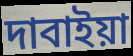
দাবাইয়া